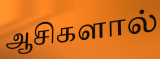
ஆசிகளால்